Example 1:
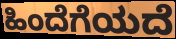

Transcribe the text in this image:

ಹಿಂದೆಗೆಯದೆ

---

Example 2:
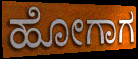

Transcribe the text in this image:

ಹೋಗಾಗ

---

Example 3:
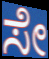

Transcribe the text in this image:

ಸೇ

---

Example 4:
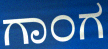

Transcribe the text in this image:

ಗಾಂಗ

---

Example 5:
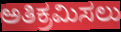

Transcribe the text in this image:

ಅತಿಕ್ರಮಿಸಲು